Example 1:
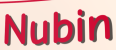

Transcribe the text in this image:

Nubin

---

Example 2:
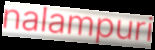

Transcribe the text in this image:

nalampuri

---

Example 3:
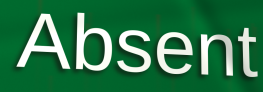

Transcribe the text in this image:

Absent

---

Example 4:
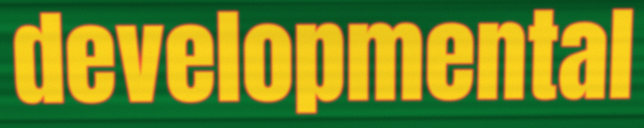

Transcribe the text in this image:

developmental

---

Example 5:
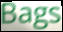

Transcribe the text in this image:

Bags